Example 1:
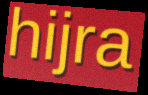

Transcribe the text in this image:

hijra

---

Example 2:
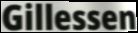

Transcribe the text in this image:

Gillessen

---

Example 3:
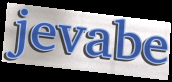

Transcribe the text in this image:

jevabe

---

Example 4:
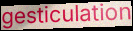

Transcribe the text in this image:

gesticulation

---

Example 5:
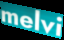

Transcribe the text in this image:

melvi